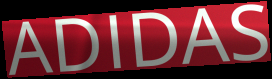
ADIDAS